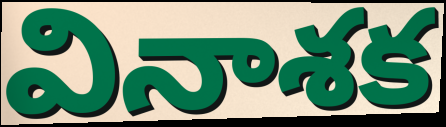
వినాశక